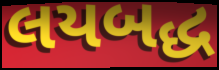
લયબદ્ધ